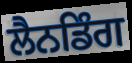
ਲੈਨਡਿੰਗ